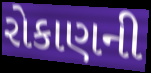
રોકાણની